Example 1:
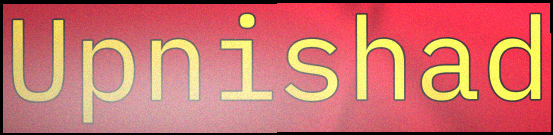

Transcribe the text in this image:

Upnishad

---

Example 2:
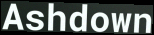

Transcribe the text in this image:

Ashdown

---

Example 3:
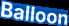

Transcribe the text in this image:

Balloon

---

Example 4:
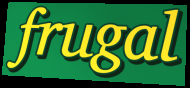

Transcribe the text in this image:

frugal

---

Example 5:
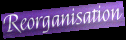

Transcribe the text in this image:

Reorganisation